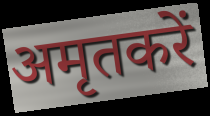
अमृतकरें